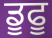
ਡੂਫੂ